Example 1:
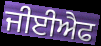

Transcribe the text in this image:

ਜੀਈਐਫ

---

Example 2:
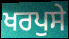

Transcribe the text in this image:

ਖਰਪੁਸੇ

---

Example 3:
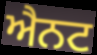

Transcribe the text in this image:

ਐਨਟ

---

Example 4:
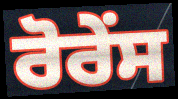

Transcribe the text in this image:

ਰੋਰੇਂਸ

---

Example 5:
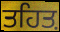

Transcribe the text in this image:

ਤਹਿਤ਼